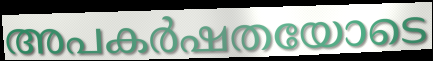
അപകർഷതയോടെ